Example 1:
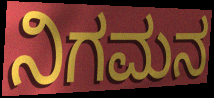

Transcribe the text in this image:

ನಿಗಮನ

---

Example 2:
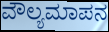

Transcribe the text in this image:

ವೌಲ್ಯಮಾಪನ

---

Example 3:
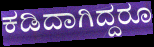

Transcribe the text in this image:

ಕಡಿದಾಗಿದ್ದರೂ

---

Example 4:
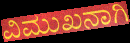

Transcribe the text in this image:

ವಿಮುಖನಾಗಿ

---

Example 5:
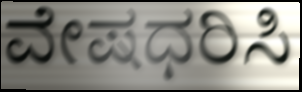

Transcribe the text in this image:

ವೇಷಧರಿಸಿ